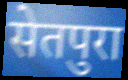
सेतपुरा